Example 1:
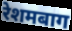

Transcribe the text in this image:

रेशमबाग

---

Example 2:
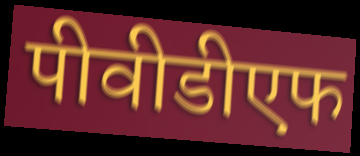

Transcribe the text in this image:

पीवीडीएफ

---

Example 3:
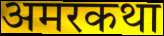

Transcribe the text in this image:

अमरकथा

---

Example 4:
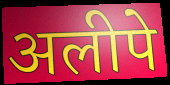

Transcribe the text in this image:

अलीपे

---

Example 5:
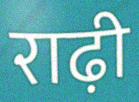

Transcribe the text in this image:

राढ़ी